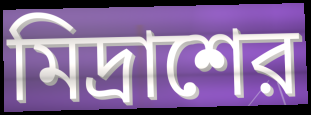
মিদ্রাশের